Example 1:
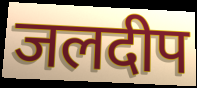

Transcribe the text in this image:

जलदीप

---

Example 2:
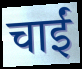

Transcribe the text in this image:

चाईं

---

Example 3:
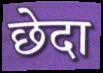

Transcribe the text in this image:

छेदा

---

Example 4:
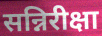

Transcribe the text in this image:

सन्निरीक्षा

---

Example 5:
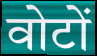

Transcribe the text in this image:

वोटों